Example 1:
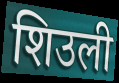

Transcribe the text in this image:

शिउली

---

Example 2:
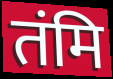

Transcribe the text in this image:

तंमि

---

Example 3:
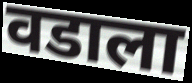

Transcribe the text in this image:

वडाला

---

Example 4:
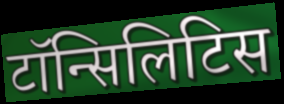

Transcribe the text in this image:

टॉन्सिलिटिस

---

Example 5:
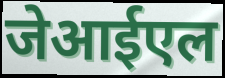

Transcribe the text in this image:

जेआईएल